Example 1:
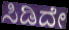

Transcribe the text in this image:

ಸಿಡಿದೇ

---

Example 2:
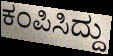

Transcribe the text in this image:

ಕಂಪಿಸಿದ್ದು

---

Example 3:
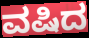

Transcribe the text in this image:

ವಷಿದ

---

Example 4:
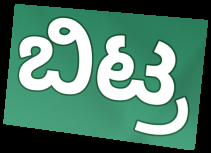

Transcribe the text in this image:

ಬಿಟ್ರ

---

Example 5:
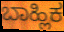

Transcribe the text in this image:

ಬಾಹ್ಲಿಕ